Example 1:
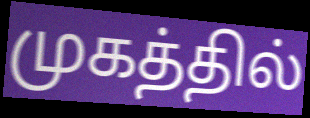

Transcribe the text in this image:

முகத்தில்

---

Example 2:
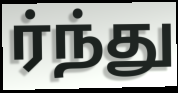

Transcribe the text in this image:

ர்ந்து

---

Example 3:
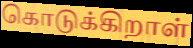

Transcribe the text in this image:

கொடுக்கிறாள்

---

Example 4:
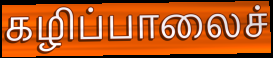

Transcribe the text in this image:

கழிப்பாலைச்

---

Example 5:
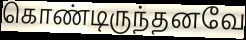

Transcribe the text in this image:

கொண்டிருந்தனவே